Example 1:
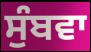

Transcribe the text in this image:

ਸੁੰਬਵਾ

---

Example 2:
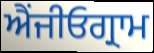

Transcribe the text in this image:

ਐਂਜੀਓਗ੍ਰਾਮ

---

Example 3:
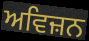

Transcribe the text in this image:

ਅਵਿਜ਼ਨ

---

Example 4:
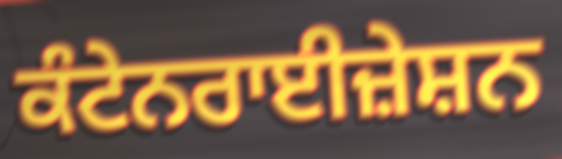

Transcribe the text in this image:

ਕੰਟੇਨਰਾਈਜ਼ੇਸ਼ਨ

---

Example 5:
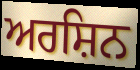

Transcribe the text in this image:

ਅਰਸ਼ਿਨ